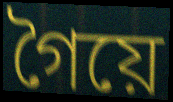
গৈয়ে